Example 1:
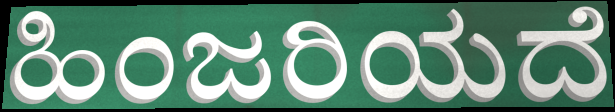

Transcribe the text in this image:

ಹಿಂಜರಿಯದೆ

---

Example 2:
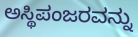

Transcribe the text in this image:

ಅಸ್ಥಿಪಂಜರವನ್ನು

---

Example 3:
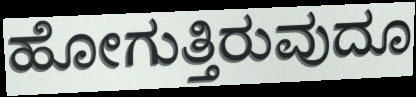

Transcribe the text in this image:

ಹೋಗುತ್ತಿರುವುದೂ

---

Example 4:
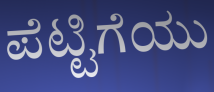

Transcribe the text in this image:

ಪೆಟ್ಟಿಗೆಯು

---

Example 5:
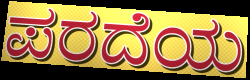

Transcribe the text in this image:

ಪರದೆಯ